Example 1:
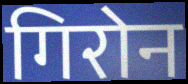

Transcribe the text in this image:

गिरोन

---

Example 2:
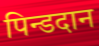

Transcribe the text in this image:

पिन्डदान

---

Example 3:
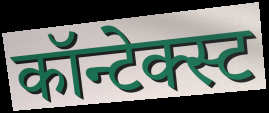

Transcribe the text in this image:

कॉन्टेक्स्ट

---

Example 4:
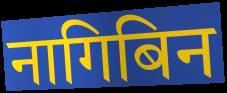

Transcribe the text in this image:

नागिबिन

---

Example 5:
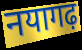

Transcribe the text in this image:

नयागढ़